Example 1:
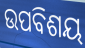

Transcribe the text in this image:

ଉପବିଶୟ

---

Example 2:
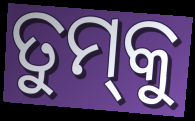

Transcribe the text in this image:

ତୁମ୍‌କୁ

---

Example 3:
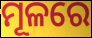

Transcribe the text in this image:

ମୂଳରେ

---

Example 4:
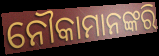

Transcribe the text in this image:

ନୌକାମାନଙ୍କରି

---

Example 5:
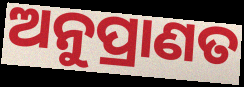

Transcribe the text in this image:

ଅନୁପ୍ରାଣତ